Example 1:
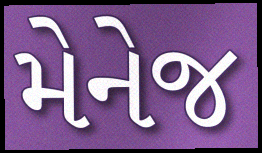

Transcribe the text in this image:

મેનેજ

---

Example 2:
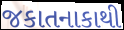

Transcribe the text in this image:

જકાતનાકાથી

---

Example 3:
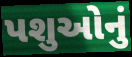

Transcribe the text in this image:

પશુઓનું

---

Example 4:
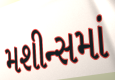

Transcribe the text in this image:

મશીન્સમાં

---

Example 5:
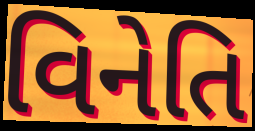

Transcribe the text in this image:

વિનેતિ